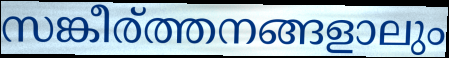
സങ്കീര്ത്തനങ്ങളാലും